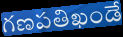
గణపతిఖండే